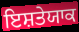
ਇਸ਼ਤੇਯਾਕ